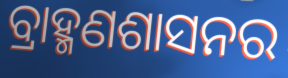
ବ୍ରାହ୍ମଣଶାସନର